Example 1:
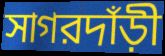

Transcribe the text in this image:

সাগরদাঁড়ী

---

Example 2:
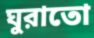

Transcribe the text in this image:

ঘুরাতো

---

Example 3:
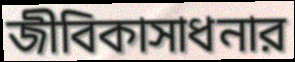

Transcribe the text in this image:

জীবিকাসাধনার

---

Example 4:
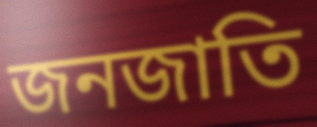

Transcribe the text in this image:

জনজাতি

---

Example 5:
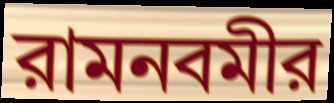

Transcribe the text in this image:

রামনবমীর